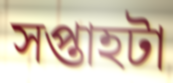
সপ্তাহটা